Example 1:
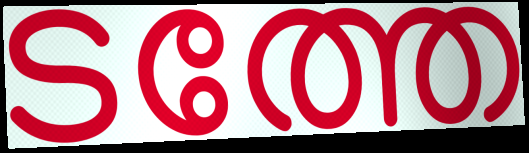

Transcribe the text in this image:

ടത്തേ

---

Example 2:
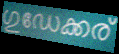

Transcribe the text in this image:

ഗുഡേക്കര്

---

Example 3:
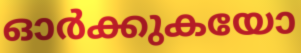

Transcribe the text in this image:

ഓർക്കുകയോ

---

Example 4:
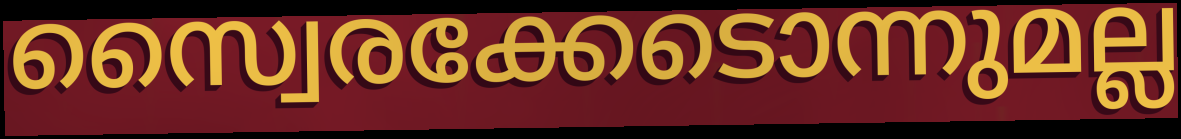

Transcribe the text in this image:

സ്വൈരക്കേടൊന്നുമല്ല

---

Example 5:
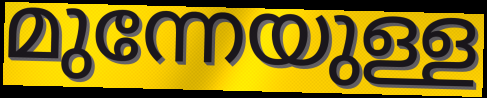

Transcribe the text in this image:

മുന്നേയുള്ള